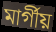
মার্গীয়